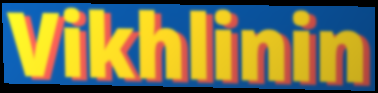
Vikhlinin